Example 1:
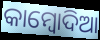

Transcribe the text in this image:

କାମ୍ବୋଦିଆ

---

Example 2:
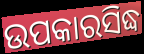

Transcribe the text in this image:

ଉପକାରସିଦ୍ଧ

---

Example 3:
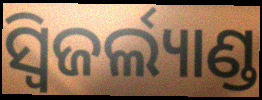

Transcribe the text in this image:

ସ୍ୱିଜର୍ଲ୍ୟାଣ୍ଡ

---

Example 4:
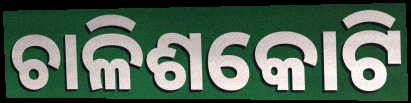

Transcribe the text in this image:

ଚାଳିଶକୋଟି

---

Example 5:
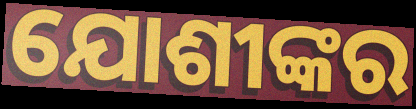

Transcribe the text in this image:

ଯୋଶୀଙ୍କର